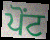
ਪੋਂਟ